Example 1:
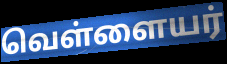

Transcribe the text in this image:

வெள்ளையர்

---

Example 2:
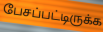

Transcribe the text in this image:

பேசப்பட்டிருக்க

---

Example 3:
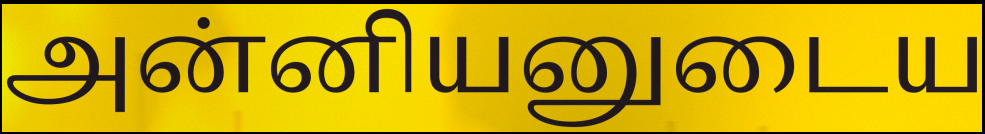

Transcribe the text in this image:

அன்னியனுடைய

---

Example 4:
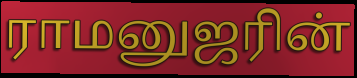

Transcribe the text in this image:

ராமனுஜரின்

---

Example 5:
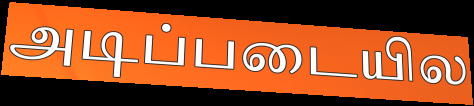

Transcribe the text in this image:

அடிப்படையில